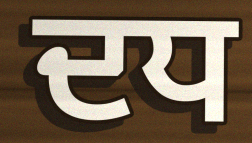
ਦਧ